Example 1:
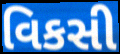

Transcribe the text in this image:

વિકસી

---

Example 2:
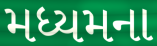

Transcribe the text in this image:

મધ્યમના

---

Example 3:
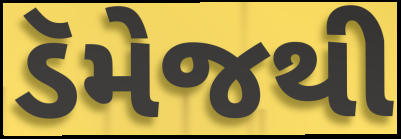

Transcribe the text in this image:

ડૅમેજથી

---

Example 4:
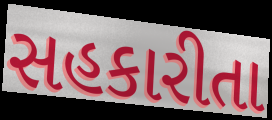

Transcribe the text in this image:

સહકારીતા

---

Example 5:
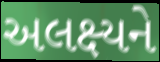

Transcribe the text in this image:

અલક્ષ્યને